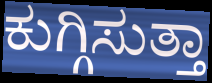
ಕುಗ್ಗಿಸುತ್ತಾ